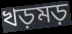
খড়মড়